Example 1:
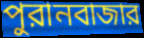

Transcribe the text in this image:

পুরানবাজার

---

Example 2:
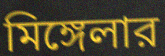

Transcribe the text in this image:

মিঙ্গেলার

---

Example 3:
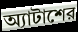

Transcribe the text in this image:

অ্যাটাশের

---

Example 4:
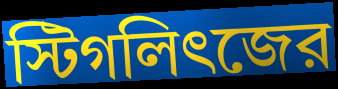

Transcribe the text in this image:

স্টিগলিৎজের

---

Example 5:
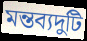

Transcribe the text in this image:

মন্তব্যদুটি